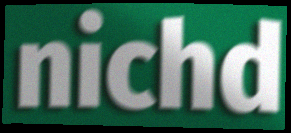
nichd